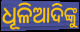
ଧୂଳିଆଦିଙ୍କୁ